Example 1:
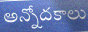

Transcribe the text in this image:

అన్నోదకాలు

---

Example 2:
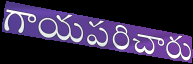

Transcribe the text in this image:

గాయపరిచారు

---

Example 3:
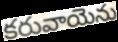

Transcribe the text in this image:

కరువాయెను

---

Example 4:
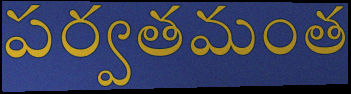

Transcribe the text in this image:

పర్వతమంత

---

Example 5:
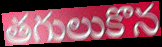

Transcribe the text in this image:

తగులుకొన